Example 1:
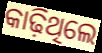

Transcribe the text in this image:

କାଢ଼ିଥିଲେ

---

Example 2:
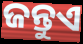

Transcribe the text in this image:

ଜନ୍ତୁଏ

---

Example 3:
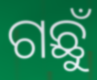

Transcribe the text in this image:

ଗଛୁଁ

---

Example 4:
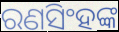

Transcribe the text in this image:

ରଣସିଂହଙ୍କ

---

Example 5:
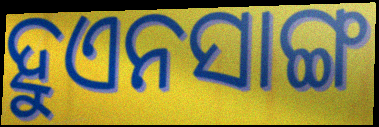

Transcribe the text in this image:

ହୁଏନସାଙ୍ଗ